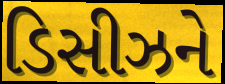
ડિસીઝને